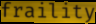
fraility